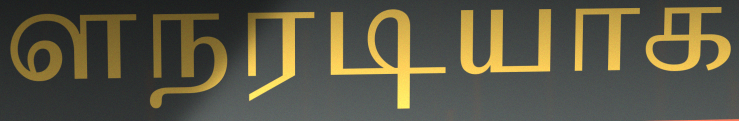
ளநரடியாக